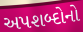
અપશબ્દોનો